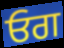
ਓਗ